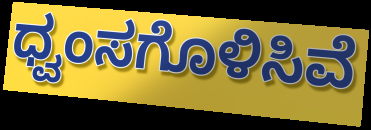
ಧ್ವಂಸಗೊಳಿಸಿವೆ